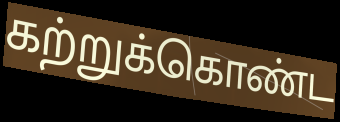
கற்றுக்கொண்ட